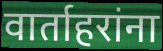
वार्ताहरांना